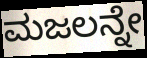
ಮಜಲನ್ನೇ